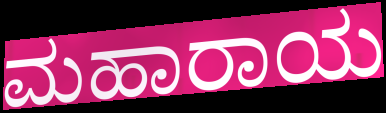
ಮಹಾರಾಯ